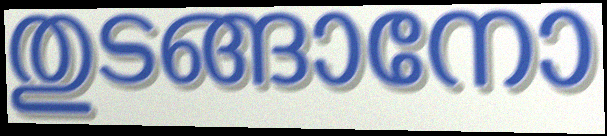
തുടങ്ങാനോ